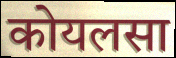
कोयलसा